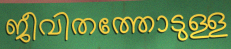
ജീവിതത്തോടുള്ള